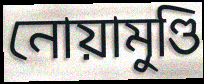
নোয়ামুণ্ডি